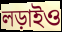
লড়াইও